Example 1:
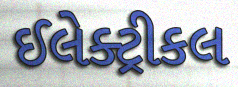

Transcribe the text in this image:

ઈલેક્ટ્રીકલ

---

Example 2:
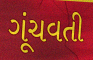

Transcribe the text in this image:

ગૂંચવતી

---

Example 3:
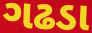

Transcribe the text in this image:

ગઢડા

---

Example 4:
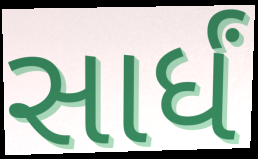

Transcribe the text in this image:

સાર્ધં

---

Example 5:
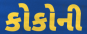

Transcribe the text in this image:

કોકોની